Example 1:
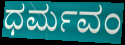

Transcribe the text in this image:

ಧರ್ಮವಂ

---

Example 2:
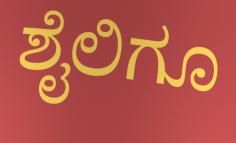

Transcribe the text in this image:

ಶೈಲಿಗೂ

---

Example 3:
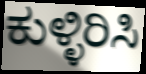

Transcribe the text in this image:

ಕುಳ್ಳಿರಿಸಿ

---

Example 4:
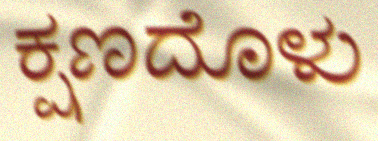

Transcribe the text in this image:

ಕ್ಷಣದೊಳು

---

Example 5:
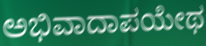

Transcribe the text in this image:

ಅಭಿವಾದಾಪಯೇಥ